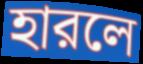
হারলে